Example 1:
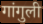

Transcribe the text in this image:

गांगुली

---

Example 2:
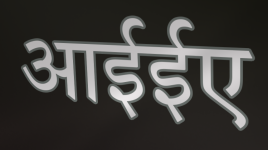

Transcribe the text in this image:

आईईए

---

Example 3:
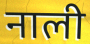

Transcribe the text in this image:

नाली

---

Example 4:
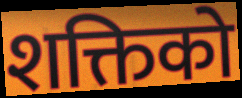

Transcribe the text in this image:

शक्तिको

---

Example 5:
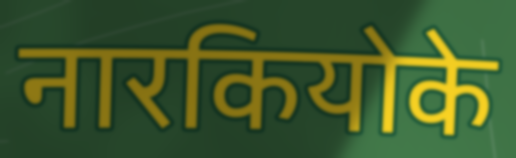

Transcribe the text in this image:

नारकियोके